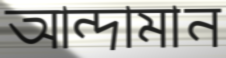
আন্দামান